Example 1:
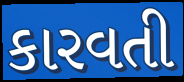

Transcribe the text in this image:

કારવતી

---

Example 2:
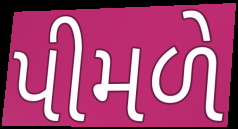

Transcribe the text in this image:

પીમળે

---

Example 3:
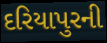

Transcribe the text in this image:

દરિયાપુરની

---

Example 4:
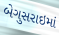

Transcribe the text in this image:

બેગુસરાઇમાં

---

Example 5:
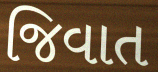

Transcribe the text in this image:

જિવાત